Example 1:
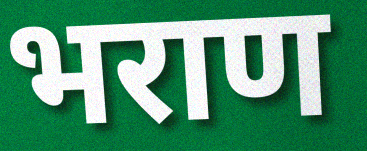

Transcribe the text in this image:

भराण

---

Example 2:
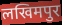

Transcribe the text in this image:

लखिमपुर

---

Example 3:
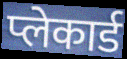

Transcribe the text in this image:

प्‍लेकार्ड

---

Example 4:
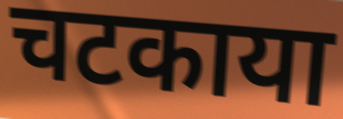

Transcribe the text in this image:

चटकाया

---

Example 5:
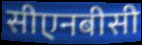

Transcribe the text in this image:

सीएनबीसी